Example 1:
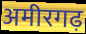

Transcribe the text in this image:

अमीरगढ़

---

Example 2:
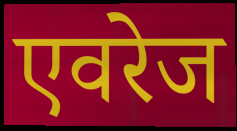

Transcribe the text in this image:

एवरेज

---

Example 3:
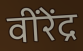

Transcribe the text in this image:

वींरेंद्र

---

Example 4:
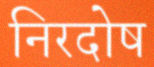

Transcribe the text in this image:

निरदोष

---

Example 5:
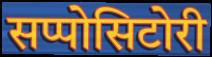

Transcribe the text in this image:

सप्पोसिटोरी